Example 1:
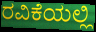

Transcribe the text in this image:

ರವಿಕೆಯಲ್ಲಿ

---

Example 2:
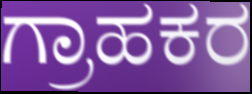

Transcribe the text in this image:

ಗ್ರಾಹಕರ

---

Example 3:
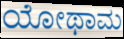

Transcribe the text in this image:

ಯೋಥಾಮ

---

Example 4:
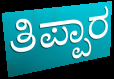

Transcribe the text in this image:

ತಿಪ್ಪಾರ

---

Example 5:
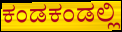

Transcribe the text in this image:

ಕಂಡಕಂಡಲ್ಲಿ